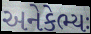
અનેકેભ્યઃ